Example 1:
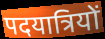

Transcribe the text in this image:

पदयात्रियों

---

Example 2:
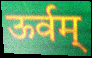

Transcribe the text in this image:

ऊर्वम्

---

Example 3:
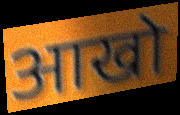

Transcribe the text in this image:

आखो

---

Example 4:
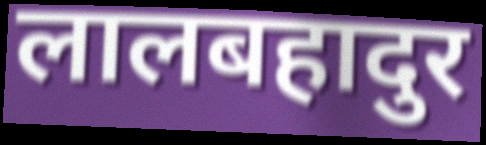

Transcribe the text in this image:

लालबहादुर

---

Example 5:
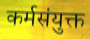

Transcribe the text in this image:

कर्मसंयुक्त